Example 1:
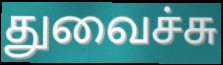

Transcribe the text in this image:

துவைச்சு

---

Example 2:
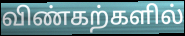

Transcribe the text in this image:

விண்கற்களில்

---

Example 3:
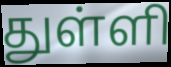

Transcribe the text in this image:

துள்ளி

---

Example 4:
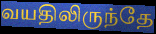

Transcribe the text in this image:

வயதிலிருந்தே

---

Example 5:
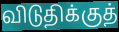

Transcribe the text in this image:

விடுதிக்குத்